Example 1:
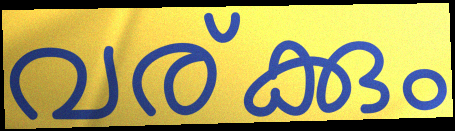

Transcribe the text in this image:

വര്ക്കും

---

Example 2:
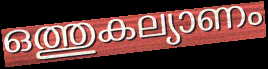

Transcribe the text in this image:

ഒത്തുകല്യാണം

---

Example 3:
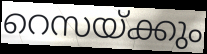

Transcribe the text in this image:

റെസയ്ക്കും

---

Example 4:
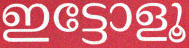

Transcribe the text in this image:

ഇട്ടോളൂ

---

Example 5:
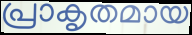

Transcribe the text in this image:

പ്രാകൃതമായ